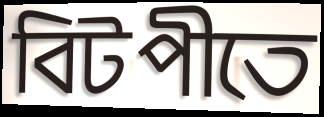
বিটপীতে